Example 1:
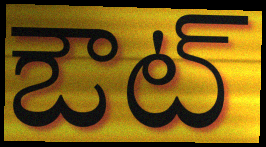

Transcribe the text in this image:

ఔట్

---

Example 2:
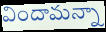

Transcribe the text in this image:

విందామన్నా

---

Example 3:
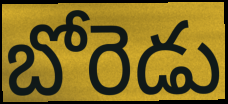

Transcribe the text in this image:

బోరెడు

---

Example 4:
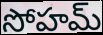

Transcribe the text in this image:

సోహమ్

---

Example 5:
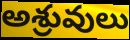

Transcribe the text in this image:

అశ్రువులు